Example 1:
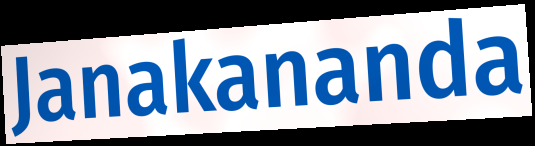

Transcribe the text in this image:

Janakananda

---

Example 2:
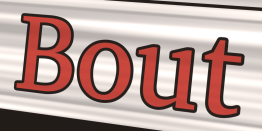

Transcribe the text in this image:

Bout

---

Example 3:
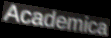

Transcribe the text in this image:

Academica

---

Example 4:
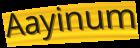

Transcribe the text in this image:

Aayinum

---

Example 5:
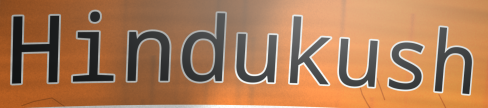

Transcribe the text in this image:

Hindukush